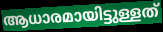
ആധാരമായിട്ടുള്ളത്